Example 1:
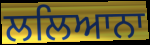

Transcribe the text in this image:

ਲਲਿਆਨਾ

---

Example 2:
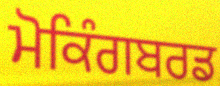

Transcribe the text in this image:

ਮੋਕਿੰਗਬਰਡ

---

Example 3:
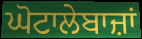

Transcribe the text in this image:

ਘੋਟਾਲੇਬਾਜ਼ਾਂ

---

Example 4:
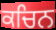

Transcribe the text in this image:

ਕਚਿਨ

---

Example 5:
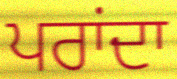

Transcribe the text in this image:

ਪਰਾਂਦਾ